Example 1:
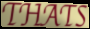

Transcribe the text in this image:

THATS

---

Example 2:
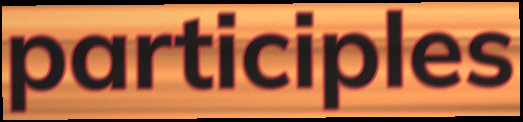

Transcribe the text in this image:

participles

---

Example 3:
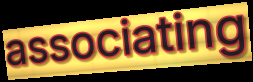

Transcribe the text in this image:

associating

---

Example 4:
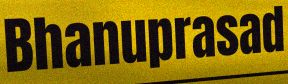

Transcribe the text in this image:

Bhanuprasad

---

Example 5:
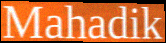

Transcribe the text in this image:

Mahadik